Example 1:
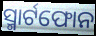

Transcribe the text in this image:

ସ୍ମାର୍ଟଫୋନ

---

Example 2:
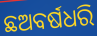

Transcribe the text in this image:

ଛଅବର୍ଷଧରି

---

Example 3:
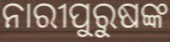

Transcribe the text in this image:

ନାରୀପୁରୁଷଙ୍କ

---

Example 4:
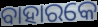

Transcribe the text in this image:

ବାହାରକେ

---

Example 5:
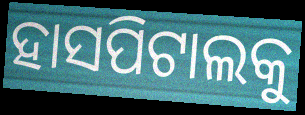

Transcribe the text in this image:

ହାସପିଟାଲକୁ